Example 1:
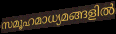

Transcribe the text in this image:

സമൂഹമാധ്യമങ്ങളിൽ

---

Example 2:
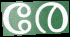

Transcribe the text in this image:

രേ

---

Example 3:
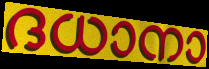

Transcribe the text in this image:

ദധാനാ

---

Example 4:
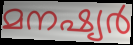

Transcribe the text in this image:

മനഷ്യർ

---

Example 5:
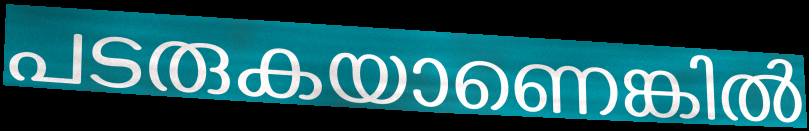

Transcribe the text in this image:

പടരുകയാണെങ്കിൽ